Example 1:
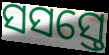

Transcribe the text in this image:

ସସସ୍ତେ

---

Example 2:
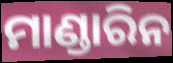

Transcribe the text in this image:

ମାଣ୍ଡାରିନ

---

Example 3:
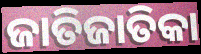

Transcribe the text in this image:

ଜାତିଜାତିକା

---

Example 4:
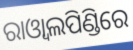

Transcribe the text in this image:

ରାଓ୍ଵାଲପିଣ୍ଡିରେ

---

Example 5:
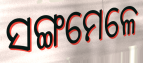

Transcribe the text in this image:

ସଙ୍ଗମେଳେ